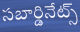
సబార్డినేట్స్